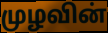
முழவின்